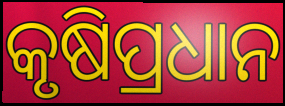
କୃଷିପ୍ରଧାନ